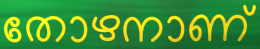
തോഴനാണ്